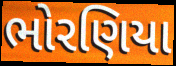
ભોરણિયા